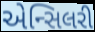
એન્સિલરી